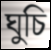
ঘুচি